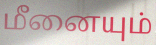
மீனையும்